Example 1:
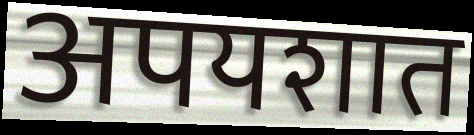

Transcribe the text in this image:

अपयशात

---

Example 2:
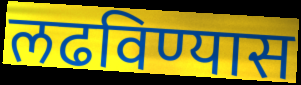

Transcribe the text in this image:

लढविण्यास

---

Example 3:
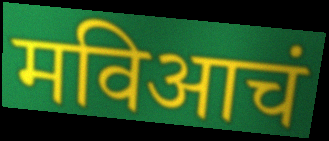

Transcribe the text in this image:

मविआचं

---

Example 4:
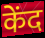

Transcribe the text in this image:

केंद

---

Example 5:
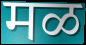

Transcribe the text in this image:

मळ